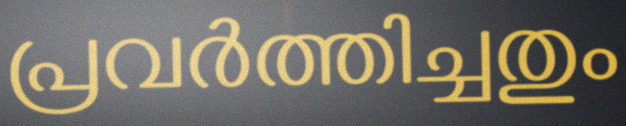
പ്രവർത്തിച്ചതും